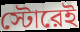
স্টোরেই